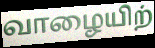
வாழையிற்